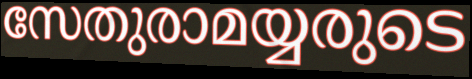
സേതുരാമയ്യരുടെ